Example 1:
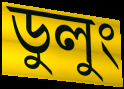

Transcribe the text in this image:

ডুলুং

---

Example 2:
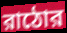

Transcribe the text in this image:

রাঠোর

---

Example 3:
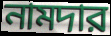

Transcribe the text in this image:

নামদার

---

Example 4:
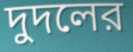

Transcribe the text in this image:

দুদলের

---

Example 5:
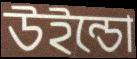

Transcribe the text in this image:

উইন্ডো